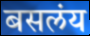
बसलंय